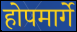
होपमार्गे